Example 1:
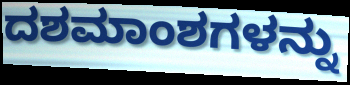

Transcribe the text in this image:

ದಶಮಾಂಶಗಳನ್ನು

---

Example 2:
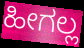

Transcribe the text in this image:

ಹೀಗಲ್ಲ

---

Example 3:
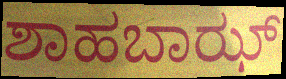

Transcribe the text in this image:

ಶಾಹಬಾಝ್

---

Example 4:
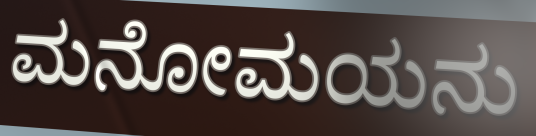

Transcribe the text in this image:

ಮನೋಮಯನು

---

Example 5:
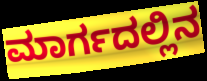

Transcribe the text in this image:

ಮಾರ್ಗದಲ್ಲಿನ